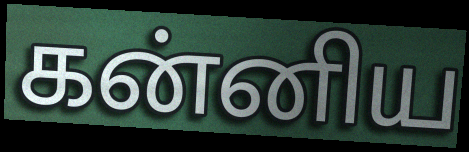
கன்னிய